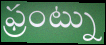
ఫ్రంట్ను